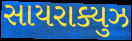
સાયરાક્યુઝ